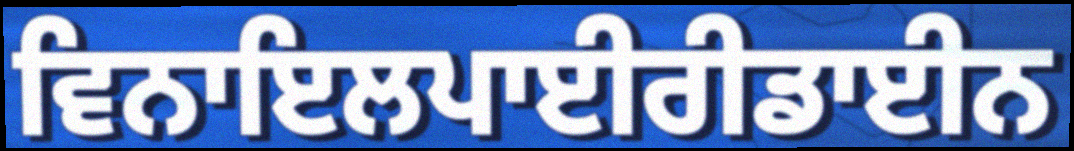
ਵਿਨਾਇਲਪਾਈਰੀਡਾਈਨ